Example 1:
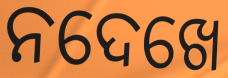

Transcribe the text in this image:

ନଦେଖେ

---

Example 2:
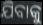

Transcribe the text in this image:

ଯିବାକୁ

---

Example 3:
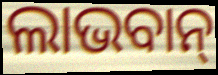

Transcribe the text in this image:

ଲାଭବାନ୍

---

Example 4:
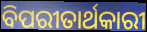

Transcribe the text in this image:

ବିପରୀତାର୍ଥକାରୀ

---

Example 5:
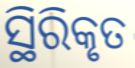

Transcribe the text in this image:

ସ୍ଥିରିକୃତ